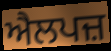
ਐਲਪਜ਼